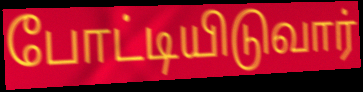
போட்டியிடுவார்